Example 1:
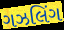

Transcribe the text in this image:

ગઝલિંગ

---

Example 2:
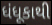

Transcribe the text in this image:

ધંધૂકાથી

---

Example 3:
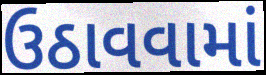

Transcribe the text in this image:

ઉઠાવવામાં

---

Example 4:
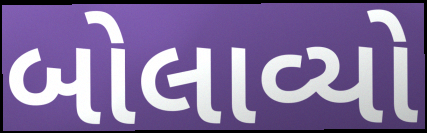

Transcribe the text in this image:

બોલાવ્યો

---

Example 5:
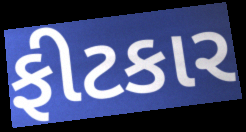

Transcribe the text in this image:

ફીટકાર